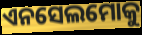
ଏନସେଲମୋକୁ